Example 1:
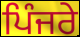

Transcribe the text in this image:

ਪਿੰਜਰੇ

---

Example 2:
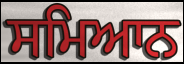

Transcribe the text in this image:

ਸਮਿਆਨ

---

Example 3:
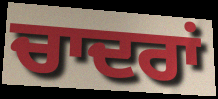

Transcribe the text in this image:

ਚਾਦਰਾਂ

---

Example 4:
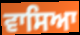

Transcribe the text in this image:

ਵਾਸਿਆ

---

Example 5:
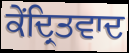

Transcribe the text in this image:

ਕੇਂਦ੍ਰਿਤਵਾਦ